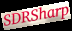
SDRSharp